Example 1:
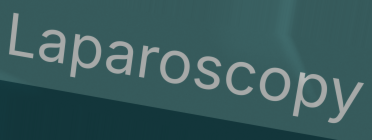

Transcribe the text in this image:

Laparoscopy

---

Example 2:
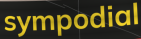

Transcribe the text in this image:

sympodial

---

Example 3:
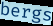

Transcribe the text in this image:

bergs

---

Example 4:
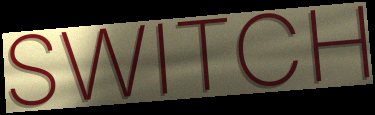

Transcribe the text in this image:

SWITCH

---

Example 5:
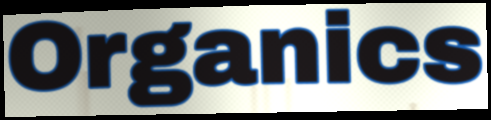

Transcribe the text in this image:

Organics